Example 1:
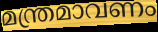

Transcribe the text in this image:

മന്ത്രമാവണം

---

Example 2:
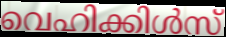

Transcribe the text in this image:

വെഹിക്കിൾസ്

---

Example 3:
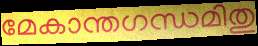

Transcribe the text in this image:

മേകാന്തഗന്ധമിതു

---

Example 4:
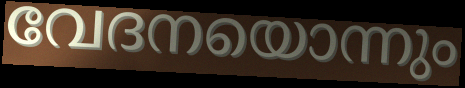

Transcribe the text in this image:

വേദനയൊന്നും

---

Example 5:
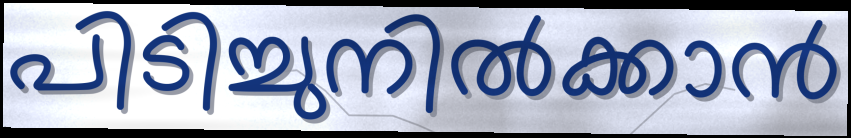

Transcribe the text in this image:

പിടിച്ചുനിൽക്കാൻ